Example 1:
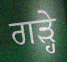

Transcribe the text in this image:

ਗੜ੍ਹੇ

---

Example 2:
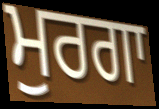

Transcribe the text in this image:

ਮੁਰਗਾ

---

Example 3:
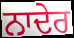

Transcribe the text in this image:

ਨਾਦੇਰ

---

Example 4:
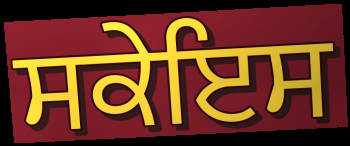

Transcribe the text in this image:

ਸਕੇਇਸ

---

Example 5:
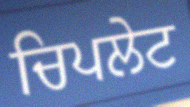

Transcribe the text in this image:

ਚਿਪਲੇਟ